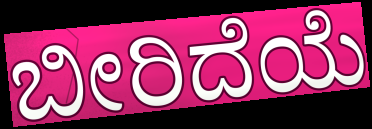
ಬೀರಿದೆಯೆ